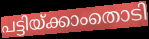
പട്ടിയ്ക്കാംതൊടി